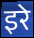
इरे